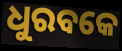
ଧୁରବକେ